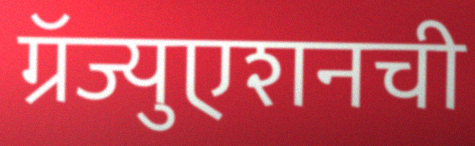
ग्रॅज्युएशनची